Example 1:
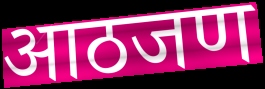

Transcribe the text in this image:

आठजण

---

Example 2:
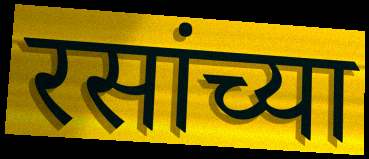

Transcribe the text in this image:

रसांच्या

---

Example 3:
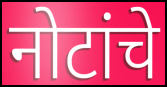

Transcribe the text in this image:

नोटांचे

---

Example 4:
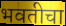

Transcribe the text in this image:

भवतीचा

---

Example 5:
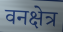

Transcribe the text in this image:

वनक्षेत्र